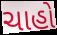
ચાહો